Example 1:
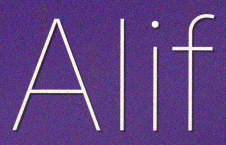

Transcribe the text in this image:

Alif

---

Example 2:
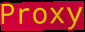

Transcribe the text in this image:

Proxy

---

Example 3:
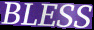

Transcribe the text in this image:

BLESS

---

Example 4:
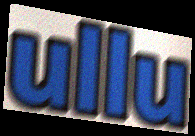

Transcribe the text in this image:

ullu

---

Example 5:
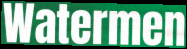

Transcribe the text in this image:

Watermen